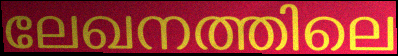
ലേഖനത്തിലെ